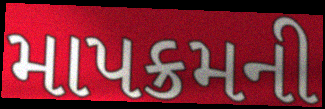
માપક્રમની